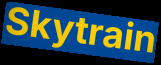
Skytrain